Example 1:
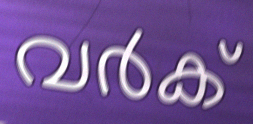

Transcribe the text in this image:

വർക്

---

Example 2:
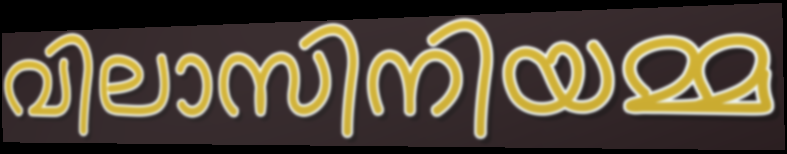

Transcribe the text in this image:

വിലാസിനിയമ്മ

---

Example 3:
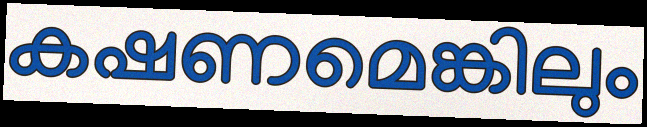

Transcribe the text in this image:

കഷണമെങ്കിലും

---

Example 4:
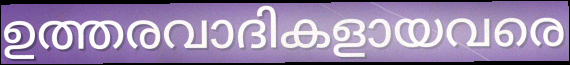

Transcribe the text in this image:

ഉത്തരവാദികളായവരെ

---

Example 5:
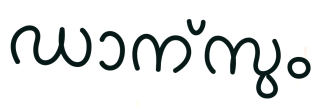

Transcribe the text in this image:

ഡാന്സും